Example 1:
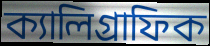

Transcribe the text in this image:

ক্যালিগ্রাফিক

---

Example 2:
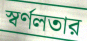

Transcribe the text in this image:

স্বর্ণলতার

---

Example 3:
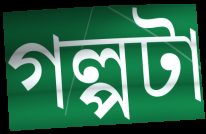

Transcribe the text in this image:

গল্পটা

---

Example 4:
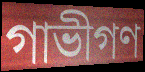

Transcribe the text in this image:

গাভীগণ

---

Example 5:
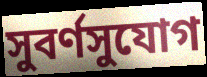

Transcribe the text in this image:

সুবর্ণসুযোগ